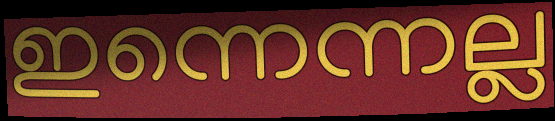
ഇന്നെന്നല്ല